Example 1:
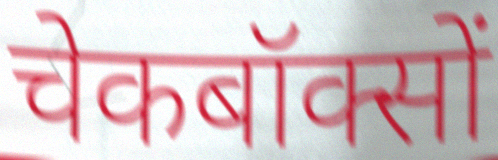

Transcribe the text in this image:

चेकबॉक्सों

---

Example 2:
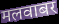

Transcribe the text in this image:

मलवाबर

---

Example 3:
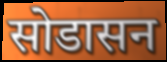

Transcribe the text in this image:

सोडासन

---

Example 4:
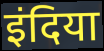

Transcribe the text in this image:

इंदिया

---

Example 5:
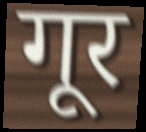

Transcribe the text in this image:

गूर